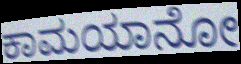
ಕಾಮಯಾನೋ